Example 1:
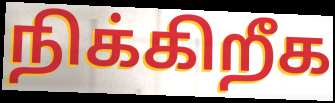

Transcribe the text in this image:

நிக்கிறீக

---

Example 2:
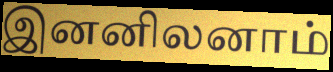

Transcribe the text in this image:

இனனிலனாம்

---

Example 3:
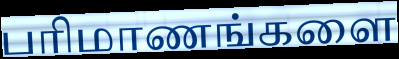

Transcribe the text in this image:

பரிமாணங்களை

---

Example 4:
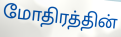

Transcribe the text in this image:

மோதிரத்தின்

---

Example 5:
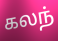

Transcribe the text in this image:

கலந்